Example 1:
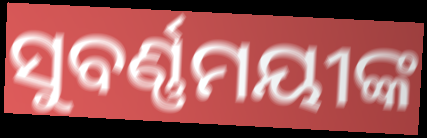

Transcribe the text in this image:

ସୁବର୍ଣ୍ଣମୟୀଙ୍କ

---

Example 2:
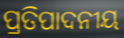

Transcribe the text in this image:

ପ୍ରତିପାଦନୀୟ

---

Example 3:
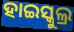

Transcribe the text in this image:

ହାଇସ୍କୁଲ୍ର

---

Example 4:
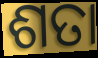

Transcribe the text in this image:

ଶତା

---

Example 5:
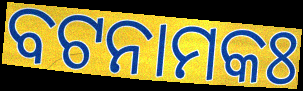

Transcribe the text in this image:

ବଟନାମକଃ